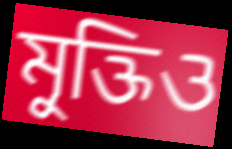
মুক্তিও